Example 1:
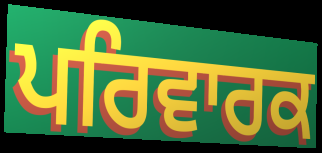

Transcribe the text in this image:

ਪਰਿਵਾਰਕ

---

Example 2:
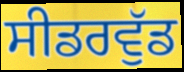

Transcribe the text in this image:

ਸੀਡਰਵੁੱਡ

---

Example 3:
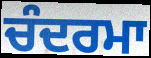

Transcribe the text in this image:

ਚੰਦਰਮਾ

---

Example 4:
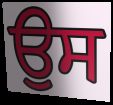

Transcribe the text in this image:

ਉਸ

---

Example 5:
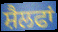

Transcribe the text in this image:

ਸ਼ੈਲਫਾਂ